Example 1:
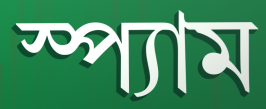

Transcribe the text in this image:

স্প্যাম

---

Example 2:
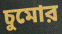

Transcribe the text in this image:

চুমোর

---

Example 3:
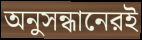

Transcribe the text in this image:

অনুসন্ধানেরই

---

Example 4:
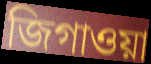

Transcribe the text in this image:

জিগাওয়া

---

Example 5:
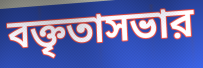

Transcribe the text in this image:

বক্তৃতাসভার